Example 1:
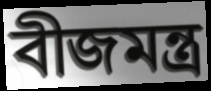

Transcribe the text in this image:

বীজমন্ত্ৰ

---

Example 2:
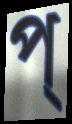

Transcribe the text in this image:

প্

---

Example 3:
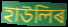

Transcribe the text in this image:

হাউলিৰ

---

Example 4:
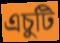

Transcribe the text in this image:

এচুটি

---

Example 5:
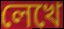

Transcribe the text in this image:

লেখে